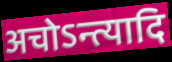
अचोऽन्त्यादि